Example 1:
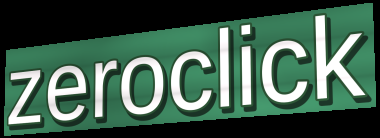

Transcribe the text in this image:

zeroclick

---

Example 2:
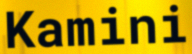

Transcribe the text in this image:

Kamini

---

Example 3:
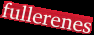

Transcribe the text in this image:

fullerenes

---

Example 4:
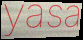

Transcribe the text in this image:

yasa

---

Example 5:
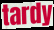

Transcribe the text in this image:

tardy